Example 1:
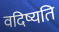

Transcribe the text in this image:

वदिष्यति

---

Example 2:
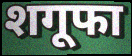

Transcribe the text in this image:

शगूफा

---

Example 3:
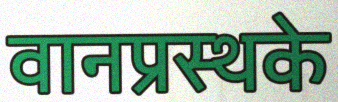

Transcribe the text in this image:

वानप्रस्थके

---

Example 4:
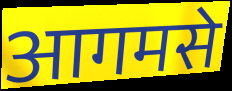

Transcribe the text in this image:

आगमसे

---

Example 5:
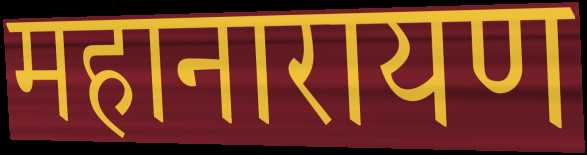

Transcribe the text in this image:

महानारायण